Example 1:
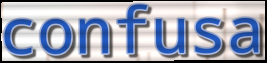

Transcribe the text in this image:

confusa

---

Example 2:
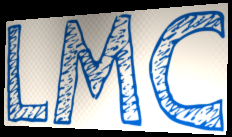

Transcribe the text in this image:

LMC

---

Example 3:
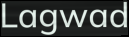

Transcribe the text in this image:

Lagwad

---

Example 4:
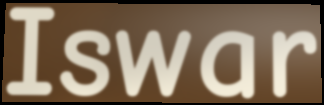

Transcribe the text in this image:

Iswar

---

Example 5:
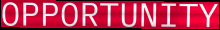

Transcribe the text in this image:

OPPORTUNITY